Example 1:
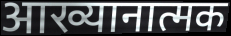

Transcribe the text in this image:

आख्यानात्मक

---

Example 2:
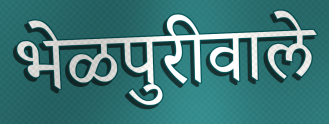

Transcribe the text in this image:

भेळपुरीवाले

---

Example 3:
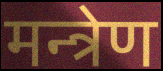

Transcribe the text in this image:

मन्त्रेण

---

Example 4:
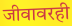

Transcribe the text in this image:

जीवावरही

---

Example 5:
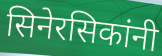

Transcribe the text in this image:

सिनेरसिकांनी